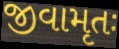
જીવામૃતઃ